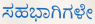
ಸಹಭಾಗಿಗಳೇ